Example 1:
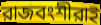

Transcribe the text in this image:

রাজবংশীরাই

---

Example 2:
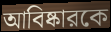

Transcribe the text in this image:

আবিষ্কারকে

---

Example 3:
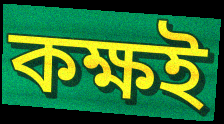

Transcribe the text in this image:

কক্ষই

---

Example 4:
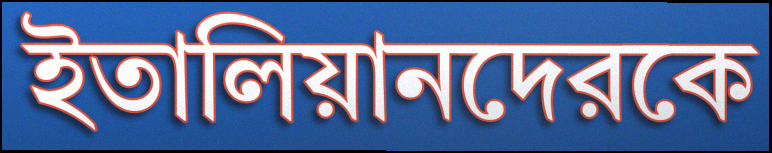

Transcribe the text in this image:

ইতালিয়ানদেরকে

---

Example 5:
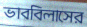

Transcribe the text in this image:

ভাববিলাসের